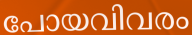
പോയവിവരം